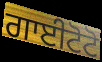
ਗਾਈਟੋਟੋ